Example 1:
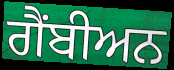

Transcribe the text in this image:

ਗੈਂਬੀਅਨ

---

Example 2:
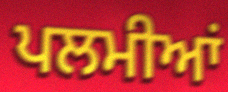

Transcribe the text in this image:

ਪਲਮੀਆਂ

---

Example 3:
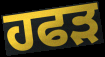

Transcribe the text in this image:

ਹਫੜ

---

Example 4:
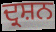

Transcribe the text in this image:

ਦ੍ਰਸ਼ਨ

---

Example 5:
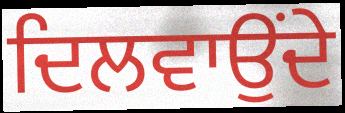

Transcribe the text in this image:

ਦਿਲਵਾਉਂਦੇ